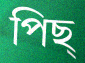
পিছ্